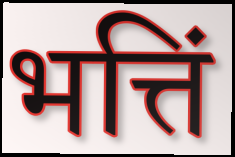
भत्तिं